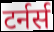
टर्नर्स